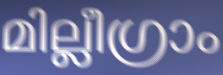
മില്ലീഗ്രാം